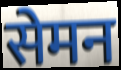
सेमन